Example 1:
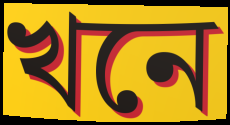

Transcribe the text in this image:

খনে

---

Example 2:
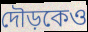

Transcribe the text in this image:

দৌড়কেও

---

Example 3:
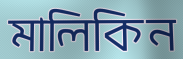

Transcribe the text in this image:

মালিকিন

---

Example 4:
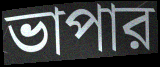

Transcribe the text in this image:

ভাপার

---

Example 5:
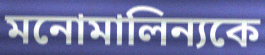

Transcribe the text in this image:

মনোমালিন্যকে